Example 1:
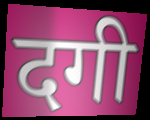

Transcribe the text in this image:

दगी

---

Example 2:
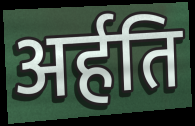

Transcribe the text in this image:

अर्हति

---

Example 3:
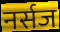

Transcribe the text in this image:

नर्सज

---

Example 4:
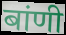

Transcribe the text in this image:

बांणी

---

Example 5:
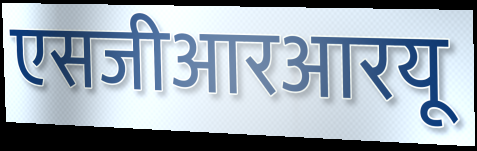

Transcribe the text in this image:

एसजीआरआरयू